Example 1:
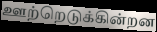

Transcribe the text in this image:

ஊற்றெடுக்கின்றன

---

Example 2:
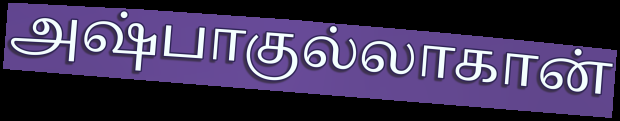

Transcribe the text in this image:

அஷ்பாகுல்லாகான்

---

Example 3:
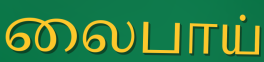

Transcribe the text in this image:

லைபாய்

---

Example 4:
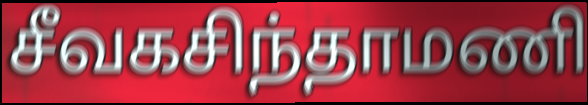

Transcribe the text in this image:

சீவகசிந்தாமணி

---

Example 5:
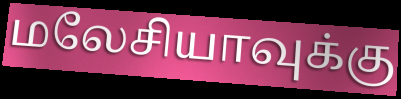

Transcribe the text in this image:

மலேசியாவுக்கு